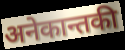
अनेकान्तकी